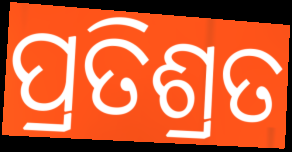
ପ୍ରତିଶ୍ରତ